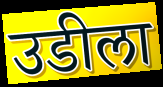
उडीला